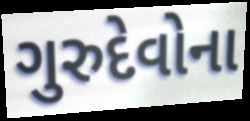
ગુરુદેવોના